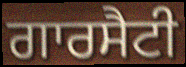
ਗਾਰਸੈਟੀ